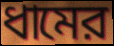
ধামের